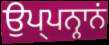
ਉਪ੍ਪਨ੍ਨਾਨਂ